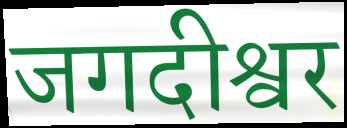
जगदीश्वर